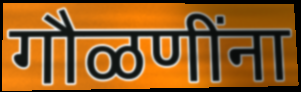
गौळणींना